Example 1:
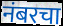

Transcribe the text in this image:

नंबरचा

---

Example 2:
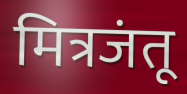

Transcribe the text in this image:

मित्रजंतू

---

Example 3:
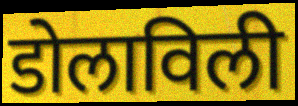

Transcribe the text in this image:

डोलाविली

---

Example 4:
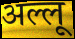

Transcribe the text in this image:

अल्लू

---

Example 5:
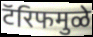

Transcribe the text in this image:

टॅरिफमुळे